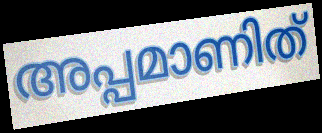
അപ്പമാണിത്